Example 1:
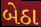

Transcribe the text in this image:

બેઠા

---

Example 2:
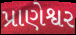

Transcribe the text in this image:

પ્રાણેશ્વર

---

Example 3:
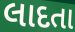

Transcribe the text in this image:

લાદતા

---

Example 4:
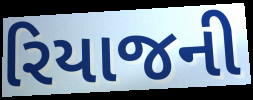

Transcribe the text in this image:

રિયાજની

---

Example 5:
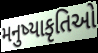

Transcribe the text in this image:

મનુષ્યાકૃતિઓ